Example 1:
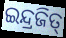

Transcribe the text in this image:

ଇନ୍ଦ୍ରଜିତ୍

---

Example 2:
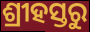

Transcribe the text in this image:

ଶ୍ରୀହସ୍ତରୁ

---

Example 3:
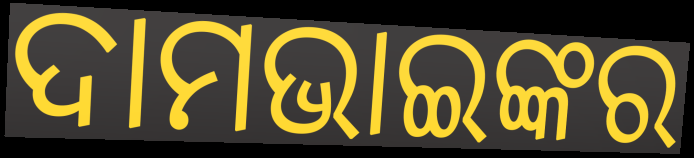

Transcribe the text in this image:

ଦାମଭାଇଙ୍କର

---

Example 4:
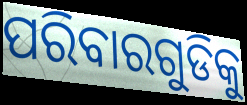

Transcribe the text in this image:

ପରିବାରଗୁଡିକୁ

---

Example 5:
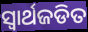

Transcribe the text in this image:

ସ୍ଵାର୍ଥଜଡିତ